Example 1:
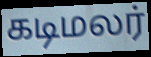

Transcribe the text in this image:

கடிமலர்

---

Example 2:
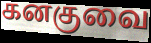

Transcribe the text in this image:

கனகுவை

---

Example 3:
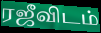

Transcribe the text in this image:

ரஜீவிடம்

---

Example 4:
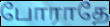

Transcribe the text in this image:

போராதே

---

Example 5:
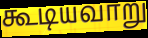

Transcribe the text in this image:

கூடியவாறு